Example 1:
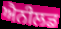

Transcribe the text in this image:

ਐਨੀਲਡ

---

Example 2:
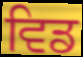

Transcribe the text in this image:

ਵਿਡ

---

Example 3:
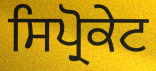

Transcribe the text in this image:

ਸਿਪ੍ਰੋਕੇਟ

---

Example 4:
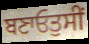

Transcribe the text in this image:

ਬਣਾਓਤੁਸੀਂ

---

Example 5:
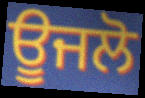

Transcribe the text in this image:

ਊਜਲੋ